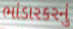
ભાંડારકરનું